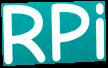
RPi